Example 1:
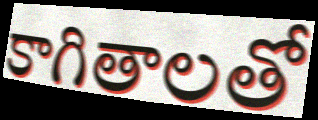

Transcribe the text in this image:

కాగితాలతో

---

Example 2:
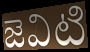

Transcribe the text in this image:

జెవిటి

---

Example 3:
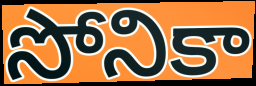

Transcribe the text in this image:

సోనికా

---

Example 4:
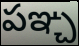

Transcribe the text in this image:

పఞ్చ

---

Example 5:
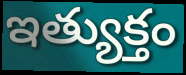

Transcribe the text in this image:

ఇత్యుక్తం